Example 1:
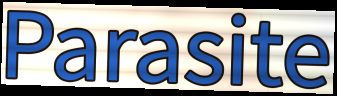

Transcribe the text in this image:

Parasite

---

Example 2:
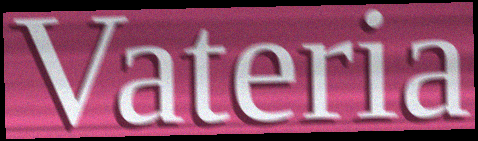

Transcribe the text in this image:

Vateria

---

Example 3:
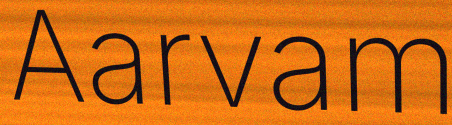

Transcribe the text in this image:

Aarvam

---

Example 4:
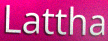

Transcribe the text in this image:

Lattha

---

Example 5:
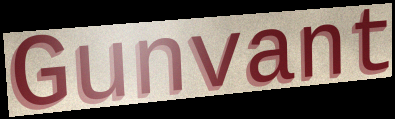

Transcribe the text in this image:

Gunvant